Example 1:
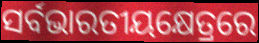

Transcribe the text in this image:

ସର୍ବଭାରତୀୟକ୍ଷେତ୍ରରେ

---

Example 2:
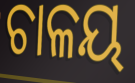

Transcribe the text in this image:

ଚାଳୟ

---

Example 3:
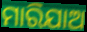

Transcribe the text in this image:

ମାରିଯାଅ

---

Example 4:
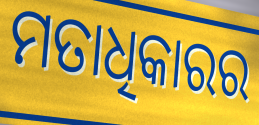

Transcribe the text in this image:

ମତାଧିକାରର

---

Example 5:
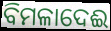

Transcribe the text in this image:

ବିମଳାଦେଈ